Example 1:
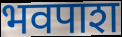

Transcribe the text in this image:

भवपाश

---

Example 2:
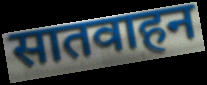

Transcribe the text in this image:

सातवाहन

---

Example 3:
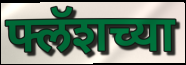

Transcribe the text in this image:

फ्लॅशच्या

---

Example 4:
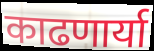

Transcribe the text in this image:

काढणार्या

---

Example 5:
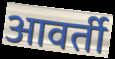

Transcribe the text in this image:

आवर्ती